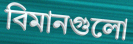
বিমানগুলো